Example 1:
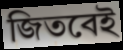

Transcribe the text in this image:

জিতবেই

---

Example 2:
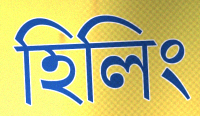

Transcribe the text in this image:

হিলিং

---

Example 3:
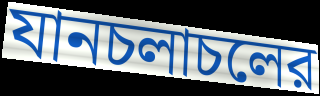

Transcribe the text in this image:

যানচলাচলের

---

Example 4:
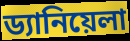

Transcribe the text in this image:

ড্যানিয়েলা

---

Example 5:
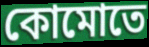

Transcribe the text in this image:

কোমোতে